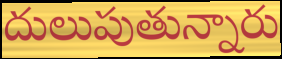
దులుపుతున్నారు